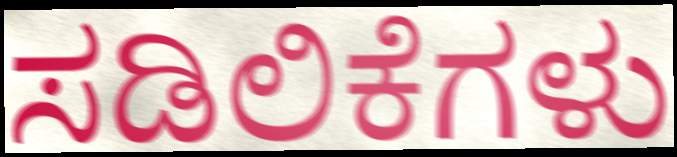
ಸಡಿಲಿಕೆಗಳು